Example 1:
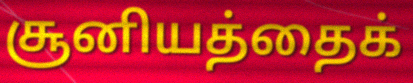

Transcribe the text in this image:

சூனியத்தைக்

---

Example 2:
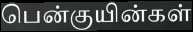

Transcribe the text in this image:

பென்குயின்கள்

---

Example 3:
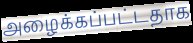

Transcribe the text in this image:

அழைக்கப்பட்டதாக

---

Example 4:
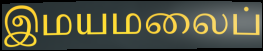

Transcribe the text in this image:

இமயமலைப்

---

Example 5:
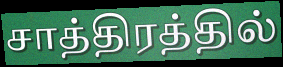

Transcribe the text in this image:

சாத்திரத்தில்